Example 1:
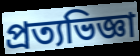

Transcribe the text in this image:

প্রত্যভিজ্ঞা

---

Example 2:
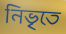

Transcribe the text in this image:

নিভৃতে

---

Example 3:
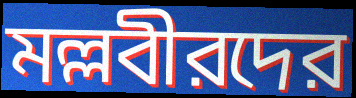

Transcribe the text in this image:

মল্লবীরদের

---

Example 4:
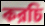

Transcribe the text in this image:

করচি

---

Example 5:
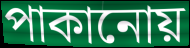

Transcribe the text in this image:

পাকানোয়